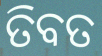
ତିବତ